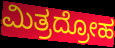
ಮಿತ್ರದ್ರೋಹ